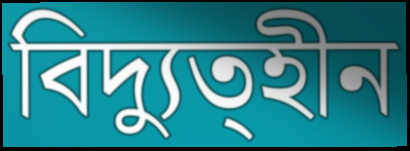
বিদ্যুত্হীন